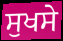
ਸੁਖਸੇ